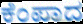
ಕೆಂಪಾದ